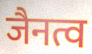
जैनत्व